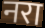
नरा